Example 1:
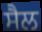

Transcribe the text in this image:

ਸੈਲ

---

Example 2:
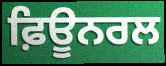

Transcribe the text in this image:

ਫ਼ਿਊਨਰਲ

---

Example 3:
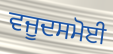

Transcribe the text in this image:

ਵਜੂਦਸਮੋਈ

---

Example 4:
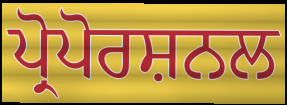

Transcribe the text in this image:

ਪ੍ਰੋਪੋਰਸ਼ਨਲ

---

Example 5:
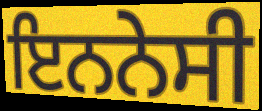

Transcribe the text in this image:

ਇਨਨੇਸੀ